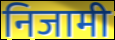
निजामी